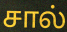
சால்